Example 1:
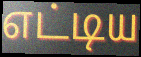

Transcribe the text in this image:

எட்டிய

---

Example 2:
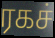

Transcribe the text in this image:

ரகச்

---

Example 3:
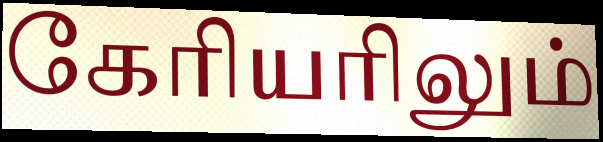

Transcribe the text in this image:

கேரியரிலும்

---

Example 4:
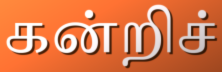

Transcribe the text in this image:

கன்றிச்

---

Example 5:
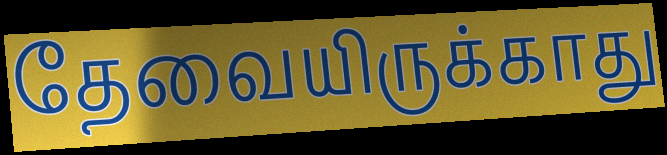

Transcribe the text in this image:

தேவையிருக்காது